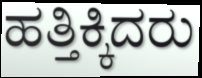
ಹತ್ತಿಕ್ಕಿದರು